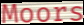
Moors